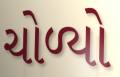
ચોળ્યો